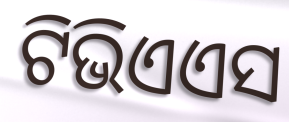
ଟିଭିଏଏସ